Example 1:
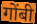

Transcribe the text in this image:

गोंबी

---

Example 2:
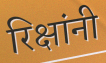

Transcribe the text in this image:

रिक्षांनी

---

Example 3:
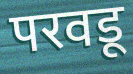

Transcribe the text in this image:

परवडू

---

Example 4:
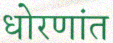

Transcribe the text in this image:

धोरणांत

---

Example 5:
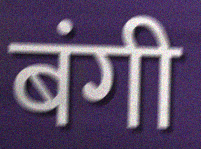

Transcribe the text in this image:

बंगी